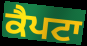
ਕੈਪਟਾ